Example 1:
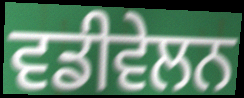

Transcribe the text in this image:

ਵਡੀਵੇਲਨ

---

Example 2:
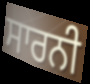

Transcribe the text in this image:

ਸਾਰਨੀ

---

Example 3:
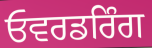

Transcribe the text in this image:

ਓਵਰਡਰਿੰਗ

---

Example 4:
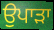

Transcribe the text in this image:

ਉਪਾੜਾ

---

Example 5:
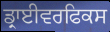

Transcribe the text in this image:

ਡ੍ਰਾਈਵਰਫਿਕਸ